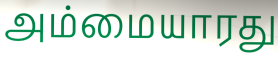
அம்மையாரது